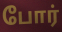
போர்